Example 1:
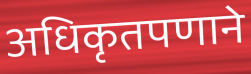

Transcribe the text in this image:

अधिकृतपणाने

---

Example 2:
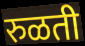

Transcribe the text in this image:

रुळती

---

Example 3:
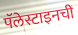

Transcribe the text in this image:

पॅलेस्टाइनची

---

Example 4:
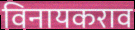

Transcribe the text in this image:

विनायकराव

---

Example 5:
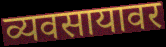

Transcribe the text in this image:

व्यवसायावर